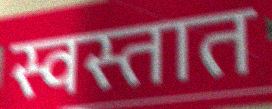
स्वस्तात